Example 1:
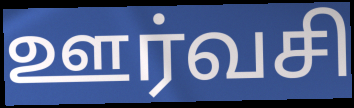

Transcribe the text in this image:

ஊர்வசி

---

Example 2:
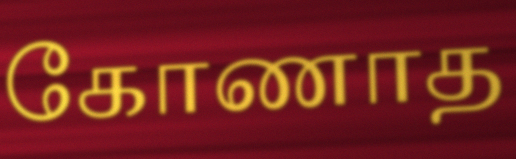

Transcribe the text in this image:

கோணாத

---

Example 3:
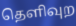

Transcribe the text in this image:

தெளிவுற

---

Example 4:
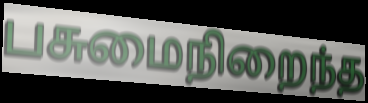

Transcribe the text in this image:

பசுமைநிறைந்த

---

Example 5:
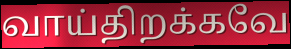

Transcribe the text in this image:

வாய்திறக்கவே